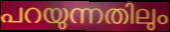
പറയുന്നതിലും